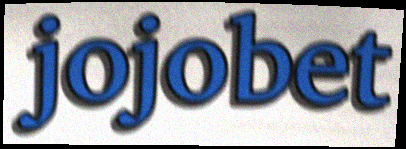
jojobet